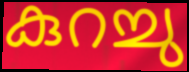
കുറച്ചു